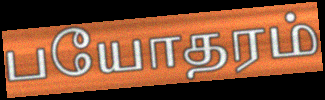
பயோதரம்